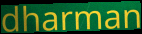
dharman